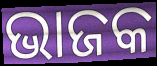
ଭାଜକ